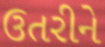
ઉતરીને